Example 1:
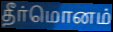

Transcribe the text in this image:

தீர்மொனம்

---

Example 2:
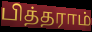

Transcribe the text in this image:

பித்தராம்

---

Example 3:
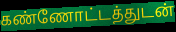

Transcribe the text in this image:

கண்ணோட்டத்துடன்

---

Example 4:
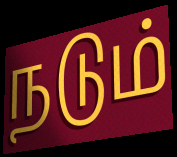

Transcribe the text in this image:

நடும்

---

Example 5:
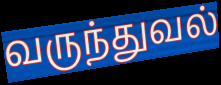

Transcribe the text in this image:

வருந்துவல்